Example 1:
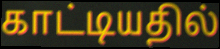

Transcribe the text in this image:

காட்டியதில்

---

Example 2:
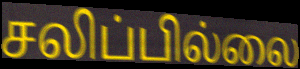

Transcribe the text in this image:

சலிப்பில்லை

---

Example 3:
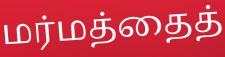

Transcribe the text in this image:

மர்மத்தைத்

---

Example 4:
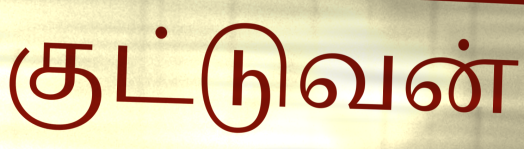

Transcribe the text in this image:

குட்டுவன்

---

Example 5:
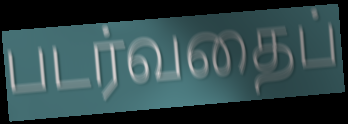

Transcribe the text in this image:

படர்வதைப்